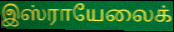
இஸ்ராயேலைக்